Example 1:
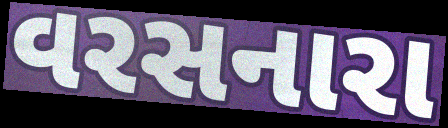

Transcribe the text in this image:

વરસનારા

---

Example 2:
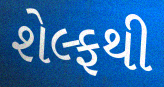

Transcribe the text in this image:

શેલ્ફથી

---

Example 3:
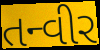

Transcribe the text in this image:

તન્વીર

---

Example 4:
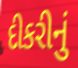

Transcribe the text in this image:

દીકરીનું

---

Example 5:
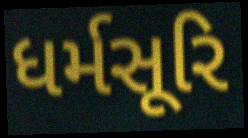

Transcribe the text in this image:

ધર્મસૂરિ